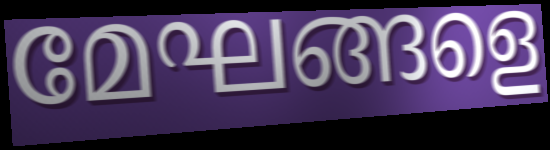
മേഘങ്ങളെ